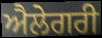
ਐਲੇਗਰੀ